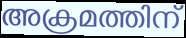
അക്രമത്തിന്